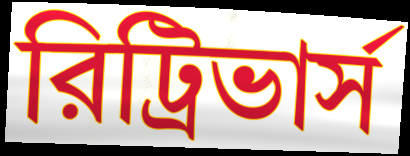
রিট্রিভার্স